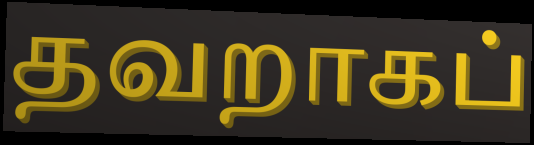
தவறாகப்